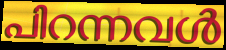
പിറന്നവൾ